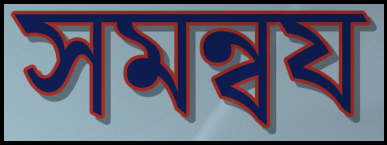
সমন্বয